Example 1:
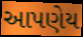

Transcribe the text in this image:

આપણેય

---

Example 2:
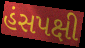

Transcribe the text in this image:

હંસપક્ષી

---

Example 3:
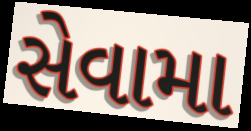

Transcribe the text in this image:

સેવામા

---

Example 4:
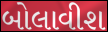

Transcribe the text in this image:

બોલાવીશ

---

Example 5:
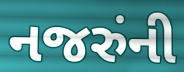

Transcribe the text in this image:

નજરુંની